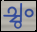
ച്ചും